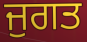
ਜੁਗਤ